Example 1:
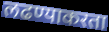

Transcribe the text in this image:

लढण्याकरता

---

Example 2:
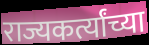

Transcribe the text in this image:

राज्यकर्त्यांच्या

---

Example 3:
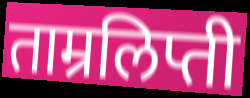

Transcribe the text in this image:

ताम्रलिप्ती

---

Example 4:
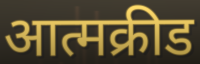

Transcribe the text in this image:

आत्मक्रीड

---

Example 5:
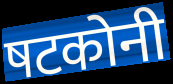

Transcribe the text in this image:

षटकोनी